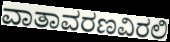
ವಾತಾವರಣವಿರಲಿ